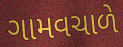
ગામવચાળે